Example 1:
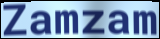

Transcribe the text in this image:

Zamzam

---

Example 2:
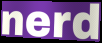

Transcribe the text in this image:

nerd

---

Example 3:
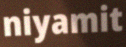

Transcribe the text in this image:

niyamit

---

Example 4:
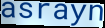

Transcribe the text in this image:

asrayn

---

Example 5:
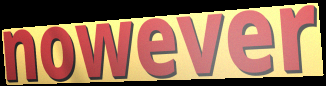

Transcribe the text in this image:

nowever